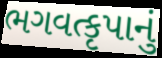
ભગવત્કૃપાનું